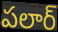
పలార్